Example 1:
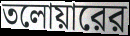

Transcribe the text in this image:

তলোয়ারের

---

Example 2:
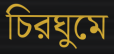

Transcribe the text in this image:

চিরঘুমে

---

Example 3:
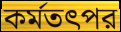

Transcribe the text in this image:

কর্মতৎপর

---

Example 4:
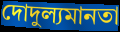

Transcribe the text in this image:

দোদুল্যমানতা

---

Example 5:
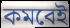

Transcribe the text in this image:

কমবেই